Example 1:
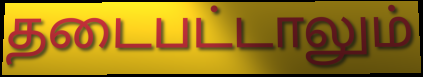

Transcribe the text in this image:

தடைபட்டாலும்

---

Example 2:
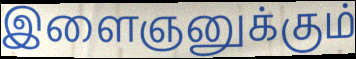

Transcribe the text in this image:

இளைஞனுக்கும்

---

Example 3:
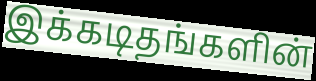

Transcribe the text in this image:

இக்கடிதங்களின்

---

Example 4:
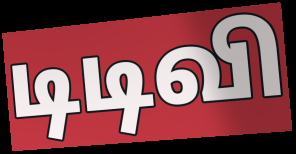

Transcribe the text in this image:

டிடிவி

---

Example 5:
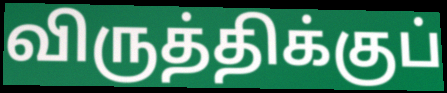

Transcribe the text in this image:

விருத்திக்குப்